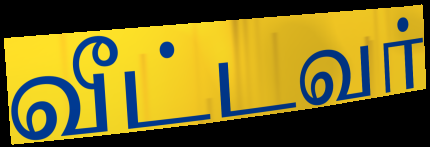
வீட்டவர்